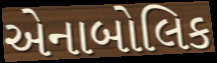
એનાબોલિક